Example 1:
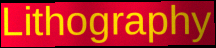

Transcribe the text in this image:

Lithography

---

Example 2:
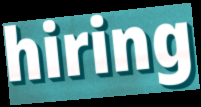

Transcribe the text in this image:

hiring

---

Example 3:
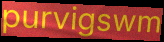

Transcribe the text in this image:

purvigswm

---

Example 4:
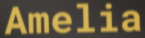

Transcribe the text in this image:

Amelia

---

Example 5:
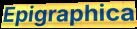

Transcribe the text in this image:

Epigraphica